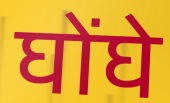
घोंघे